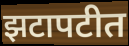
झटापटीत